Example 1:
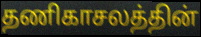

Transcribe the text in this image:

தணிகாசலத்தின்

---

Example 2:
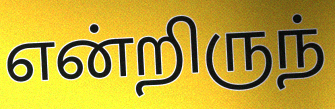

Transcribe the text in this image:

என்றிருந்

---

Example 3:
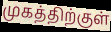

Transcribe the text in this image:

முகத்திற்குள்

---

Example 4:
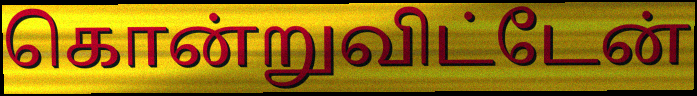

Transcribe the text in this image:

கொன்றுவிட்டேன்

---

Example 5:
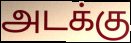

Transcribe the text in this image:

அடக்கு